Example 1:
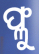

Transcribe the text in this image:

ଫ୍ଳୁ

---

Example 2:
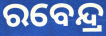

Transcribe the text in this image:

ରବେନ୍ଦ୍ର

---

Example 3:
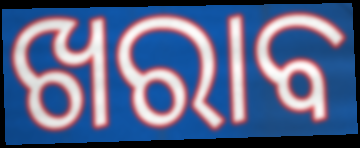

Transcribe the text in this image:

ଖରାବ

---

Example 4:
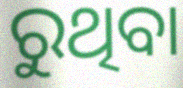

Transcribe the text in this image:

ରୁଥିବା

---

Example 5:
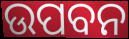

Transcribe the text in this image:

ଉପବନ